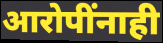
आरोपींनाही